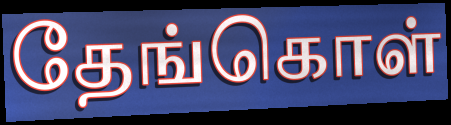
தேங்கொள்